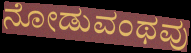
ನೋಡುವಂಥವು